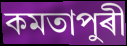
কমতাপুৰী